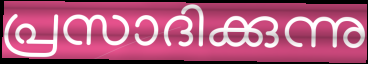
പ്രസാദിക്കുന്നു